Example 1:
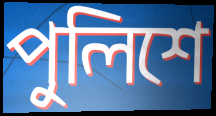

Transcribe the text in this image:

পুলিশে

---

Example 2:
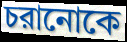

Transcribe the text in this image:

চরানোকে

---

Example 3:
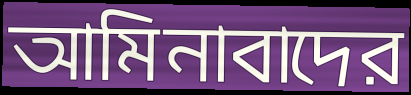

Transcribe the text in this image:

আমিনাবাদের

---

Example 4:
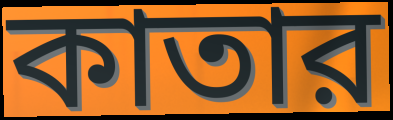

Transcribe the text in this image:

কাতার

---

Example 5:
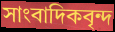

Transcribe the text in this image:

সাংবাদিকবৃন্দ